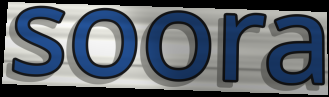
soora